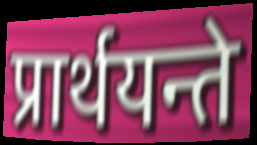
प्रार्थयन्ते